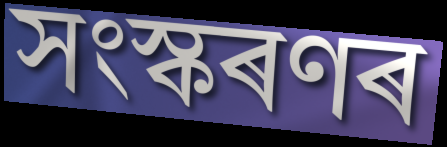
সংস্কৰণৰ